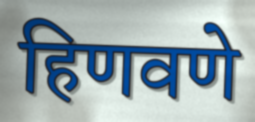
हिणवणे